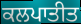
ਕਲਪਾਤੀਤ